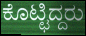
ಕೊಟ್ಟಿದ್ದರು